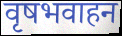
वृषभवाहन